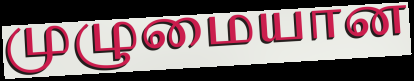
முழுமையான